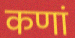
कणां